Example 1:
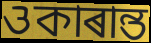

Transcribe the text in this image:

ওকাৰান্ত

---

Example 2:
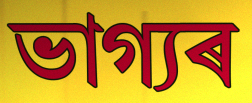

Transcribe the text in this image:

ভাগ্যৰ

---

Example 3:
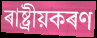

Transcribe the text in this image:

ৰাষ্ট্ৰীয়কৰণ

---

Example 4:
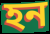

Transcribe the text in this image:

হন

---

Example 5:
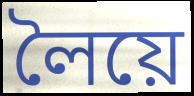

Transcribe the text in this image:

লৈয়ে